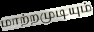
மாற்றமுடியும்